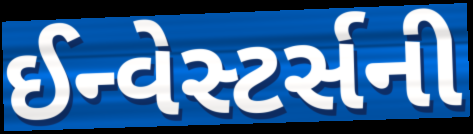
ઈન્વેસ્ટર્સની